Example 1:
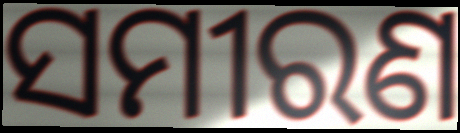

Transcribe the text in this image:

ସମୀରଣ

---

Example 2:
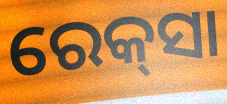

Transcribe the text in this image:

ରେକ୍‍ସା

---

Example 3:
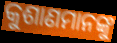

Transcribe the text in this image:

କୁଶାଣମାନଙ୍କୁ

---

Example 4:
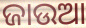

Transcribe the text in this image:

ଜାଉଆ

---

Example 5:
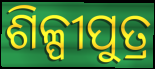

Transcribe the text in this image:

ଶିଳ୍ପୀପୁତ୍ର